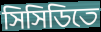
সিসিডিতে